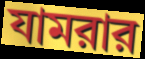
যামরার